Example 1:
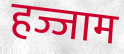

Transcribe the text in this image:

हज्जाम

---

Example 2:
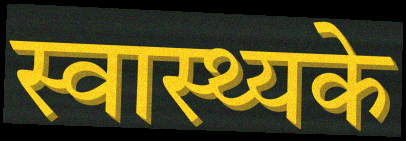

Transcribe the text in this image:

स्वास्थ्यके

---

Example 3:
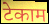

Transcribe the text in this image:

टेकाम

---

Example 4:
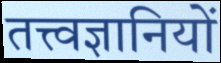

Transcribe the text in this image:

तत्त्वज्ञानियों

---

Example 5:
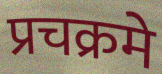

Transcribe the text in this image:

प्रचक्रमे